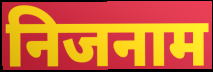
निजनाम